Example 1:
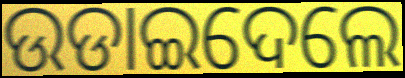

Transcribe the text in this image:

ଉଡାଇଦେଲେ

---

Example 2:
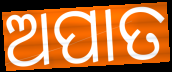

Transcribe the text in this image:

ଅପାତ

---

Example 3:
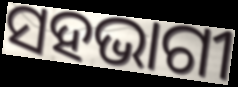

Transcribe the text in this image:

ସହଭାଗୀ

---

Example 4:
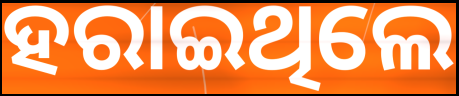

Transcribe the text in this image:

ହରାଇଥିଲେ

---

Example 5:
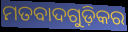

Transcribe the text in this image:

ମତବାଦଗୁଡ଼ିକର